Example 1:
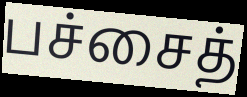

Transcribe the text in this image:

பச்சைத்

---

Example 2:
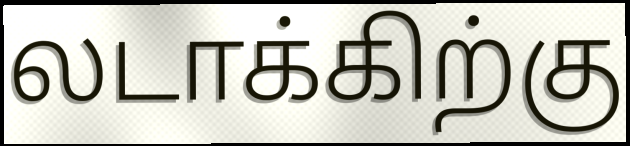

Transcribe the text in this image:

லடாக்கிற்கு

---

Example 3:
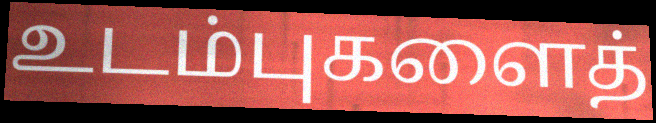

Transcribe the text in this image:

உடம்புகளைத்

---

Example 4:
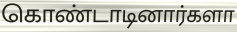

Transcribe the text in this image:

கொண்டாடினார்களா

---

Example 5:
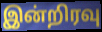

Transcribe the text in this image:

இன்றிரவு